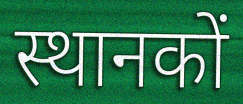
स्थानकों